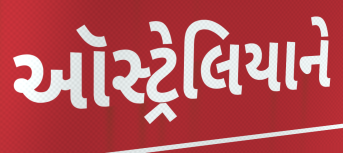
ઑસ્ટ્રેલિયાને